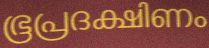
ഭൂപ്രദക്ഷിണം